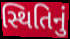
સ્થિતિનું